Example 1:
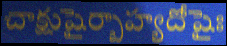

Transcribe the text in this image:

చాక్షుషైర్బాహ్యదోషైః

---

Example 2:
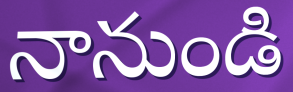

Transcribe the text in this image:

నానుండి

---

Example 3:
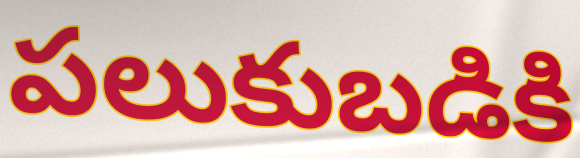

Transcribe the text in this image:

పలుకుబడికి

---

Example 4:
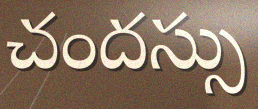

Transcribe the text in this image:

చందస్సు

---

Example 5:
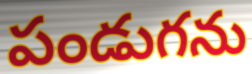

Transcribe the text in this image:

పండుగను